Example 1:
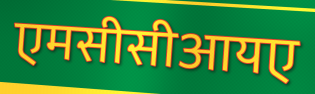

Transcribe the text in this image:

एमसीसीआयए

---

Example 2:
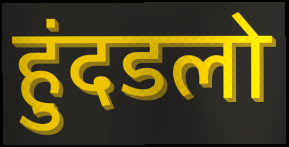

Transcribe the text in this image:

हुंदडलो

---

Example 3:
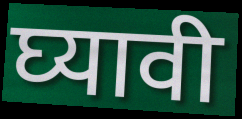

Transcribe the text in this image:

घ्यावी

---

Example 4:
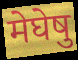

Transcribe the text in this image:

मेघेषु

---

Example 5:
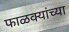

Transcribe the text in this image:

फाळक्यांच्या